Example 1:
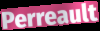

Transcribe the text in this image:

Perreault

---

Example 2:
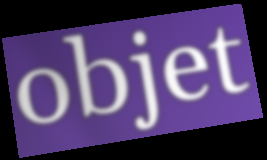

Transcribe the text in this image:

objet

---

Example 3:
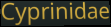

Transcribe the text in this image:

Cyprinidae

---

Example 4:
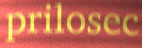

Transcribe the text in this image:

prilosec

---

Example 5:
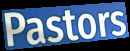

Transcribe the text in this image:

Pastors